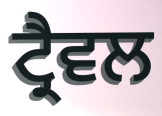
ਟ੍ਰੈਵਲ